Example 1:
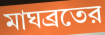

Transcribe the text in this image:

মাঘব্রতের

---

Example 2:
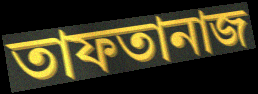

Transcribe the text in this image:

তাফতানাজ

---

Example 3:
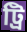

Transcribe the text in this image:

ট্রি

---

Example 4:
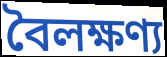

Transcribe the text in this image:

বৈলক্ষণ্য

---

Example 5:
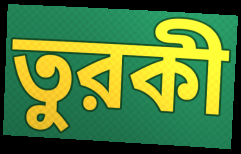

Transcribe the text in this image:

তুরকী